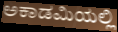
ಅಕಾಡಮಿಯಲ್ಲಿ